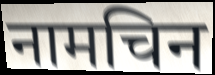
नामचिन